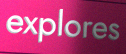
explores